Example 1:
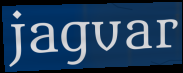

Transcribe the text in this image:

jaguar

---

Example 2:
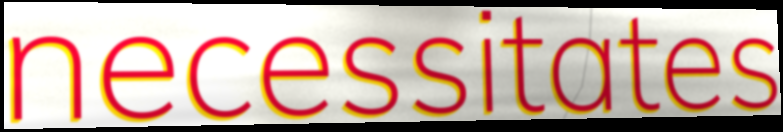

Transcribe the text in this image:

necessitates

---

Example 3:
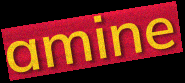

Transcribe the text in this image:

amine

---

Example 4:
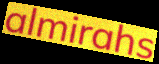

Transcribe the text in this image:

almirahs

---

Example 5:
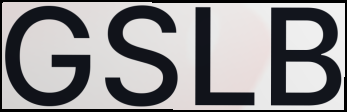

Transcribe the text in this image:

GSLB